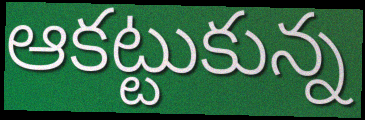
ఆకట్టుకున్న